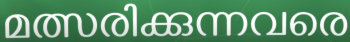
മത്സരിക്കുന്നവരെ